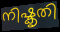
നിഷ്കൃതി